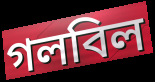
গলবিল